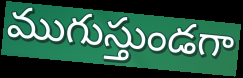
ముగుస్తుండగా